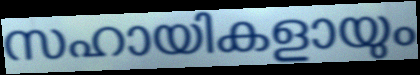
സഹായികളായും